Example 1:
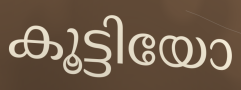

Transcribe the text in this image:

കൂട്ടിയോ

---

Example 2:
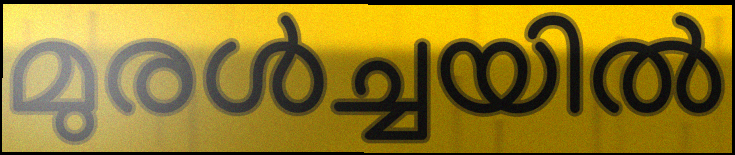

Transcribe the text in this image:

മുരൾച്ചയിൽ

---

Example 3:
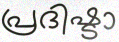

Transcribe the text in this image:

പ്രദിഷ്ടാ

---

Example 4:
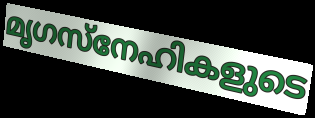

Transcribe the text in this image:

മൃഗസ്നേഹികളുടെ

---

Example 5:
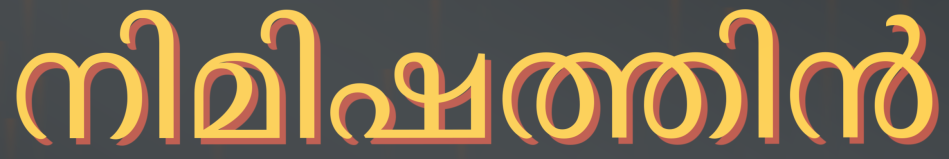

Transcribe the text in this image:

നിമിഷത്തിൻ